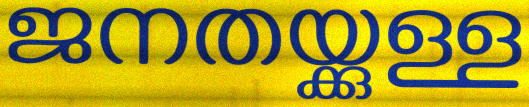
ജനതയ്ക്കുള്ള